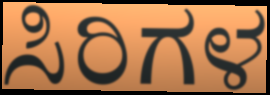
ಸಿರಿಗಳ